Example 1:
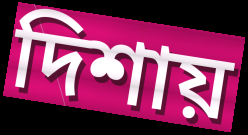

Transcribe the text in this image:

দিশায়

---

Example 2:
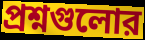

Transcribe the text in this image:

প্রশ্নগুলোর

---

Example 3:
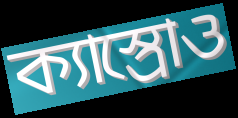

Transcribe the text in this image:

ক্যাস্ত্রোও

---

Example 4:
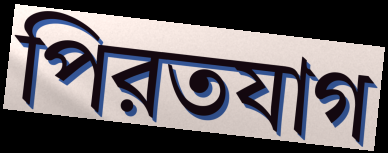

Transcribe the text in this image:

পিরতযাগ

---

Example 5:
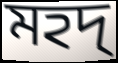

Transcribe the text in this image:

মহদ্